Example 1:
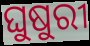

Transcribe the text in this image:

ଘୁଷୁରୀ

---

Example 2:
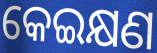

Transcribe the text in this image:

କେଇକ୍ଷଣ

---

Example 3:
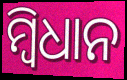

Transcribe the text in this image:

ମ୍ବିଧାନ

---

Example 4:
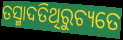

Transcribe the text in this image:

ତସ୍ମାଦତିଥିରୁଚ୍ୟତେ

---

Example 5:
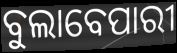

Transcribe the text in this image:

ବୁଲାବେପାରୀ